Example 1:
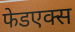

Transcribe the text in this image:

फेडएक्स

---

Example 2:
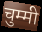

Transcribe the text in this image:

चुम्मी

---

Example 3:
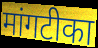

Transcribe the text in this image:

मांगटीका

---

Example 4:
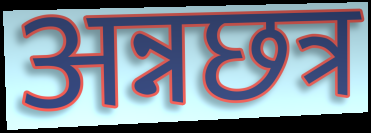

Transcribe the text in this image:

अन्नछत्र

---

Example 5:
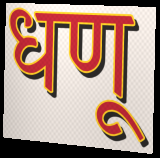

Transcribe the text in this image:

धणू